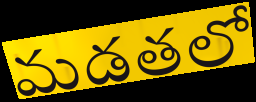
మడతలో